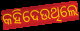
କହିଦେଉଥିଲେ